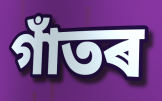
গাঁতৰ